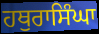
ਹਥੁਰਾਸਿੰਘਾ